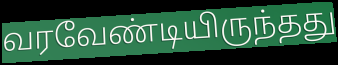
வரவேண்டியிருந்தது